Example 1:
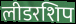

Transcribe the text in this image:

लीडरशिप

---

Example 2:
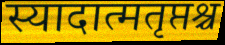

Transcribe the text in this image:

स्यादात्मतृप्तश्च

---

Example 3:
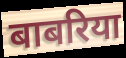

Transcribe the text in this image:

बाबरिया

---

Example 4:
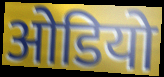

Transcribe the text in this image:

ओडियो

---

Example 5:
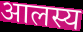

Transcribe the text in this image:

आलस्य